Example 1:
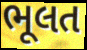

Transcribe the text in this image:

ભૂલત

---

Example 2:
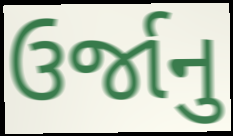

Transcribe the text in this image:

ઉર્જાનુ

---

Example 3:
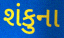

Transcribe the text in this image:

શંકુના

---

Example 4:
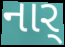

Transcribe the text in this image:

નાર્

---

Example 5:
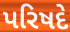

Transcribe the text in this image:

પરિષદે